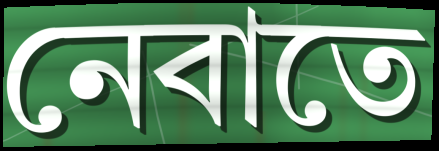
নেবাতে